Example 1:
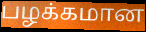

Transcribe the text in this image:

பழக்கமான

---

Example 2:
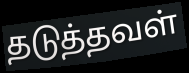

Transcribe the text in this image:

தடுத்தவள்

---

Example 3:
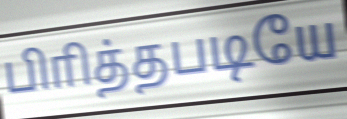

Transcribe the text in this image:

பிரித்தபடியே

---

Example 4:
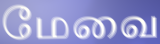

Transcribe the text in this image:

மேவை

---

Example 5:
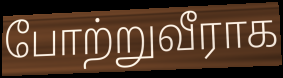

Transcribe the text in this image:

போற்றுவீராக